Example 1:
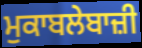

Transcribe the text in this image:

ਮੁਕਾਬਲੇਬਾਜ਼ੀ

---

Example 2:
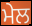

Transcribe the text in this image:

ਮੇਲ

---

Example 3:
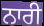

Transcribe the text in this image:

ਨਾਰੀ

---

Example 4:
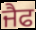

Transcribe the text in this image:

ਜੈਫ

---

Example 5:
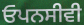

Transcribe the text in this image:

ਓਪਨਸੀਵੀ